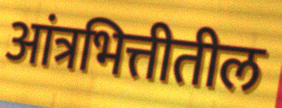
आंत्रभित्तीतील